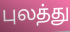
புலத்து